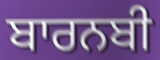
ਬਾਰਨਬੀ